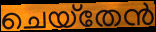
ചെയ്‌തേൻ